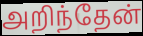
அறிந்தேன்